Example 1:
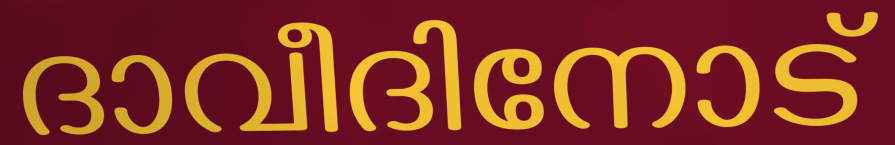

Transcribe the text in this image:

ദാവീദിനോട്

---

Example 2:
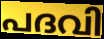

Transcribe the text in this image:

പദവി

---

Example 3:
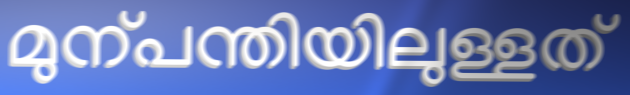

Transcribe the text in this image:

മുന്പന്തിയിലുള്ളത്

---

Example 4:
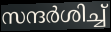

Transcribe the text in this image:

സന്ദർശിച്ച്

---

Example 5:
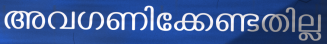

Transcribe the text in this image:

അവഗണിക്കേണ്ടതില്ല